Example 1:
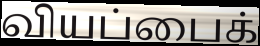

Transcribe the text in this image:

வியப்பைக்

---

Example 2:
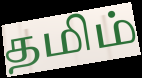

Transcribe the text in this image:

தமிம்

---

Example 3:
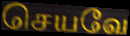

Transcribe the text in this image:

செயவே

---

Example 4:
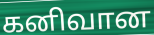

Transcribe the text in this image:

கனிவான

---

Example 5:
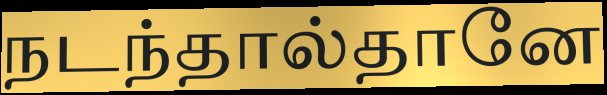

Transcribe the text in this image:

நடந்தால்தானே